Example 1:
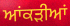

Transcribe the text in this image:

ਆਂਕੜੀਆਂ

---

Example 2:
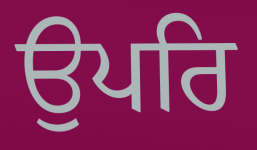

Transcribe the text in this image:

ਉਪਰਿ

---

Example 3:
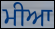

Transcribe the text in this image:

ਮੀਆ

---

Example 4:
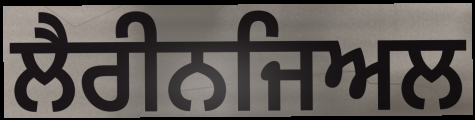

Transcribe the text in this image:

ਲੈਰੀਨਜਿਅਲ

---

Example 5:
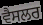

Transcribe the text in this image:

ਵੈਸਲਰ